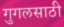
गुगलसाठी